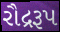
રૌદ્રરૂપ